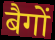
बैगों